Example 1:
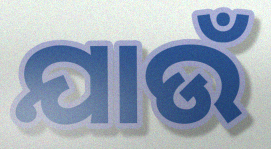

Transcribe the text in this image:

ଯାଉଁ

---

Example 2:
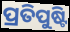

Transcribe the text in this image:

ପ୍ରତିପୁଷ୍ଟି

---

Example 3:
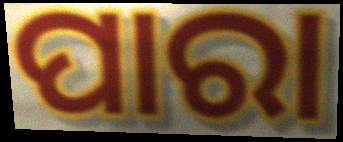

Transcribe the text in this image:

ପାରା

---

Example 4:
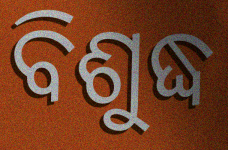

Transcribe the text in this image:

ବିଶୁଦ୍ଧ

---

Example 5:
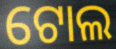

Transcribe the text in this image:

ଟୋଲ